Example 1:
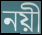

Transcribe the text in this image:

নয়ী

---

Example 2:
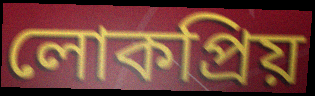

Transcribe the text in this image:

লোকপ্ৰিয়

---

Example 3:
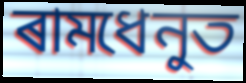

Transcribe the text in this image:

ৰামধেনুত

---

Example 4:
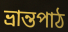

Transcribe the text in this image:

ভ্ৰান্তপাঠ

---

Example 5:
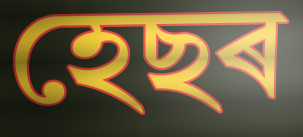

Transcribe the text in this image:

হেছৰ